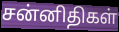
சன்னிதிகள்